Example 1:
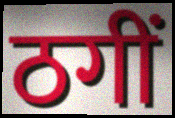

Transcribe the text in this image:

ठगीं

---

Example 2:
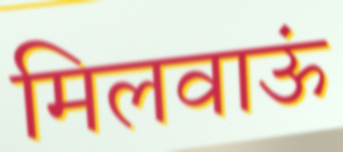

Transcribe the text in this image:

मिलवाऊं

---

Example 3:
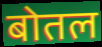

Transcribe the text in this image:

बोतल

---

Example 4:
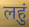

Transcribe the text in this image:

लहुं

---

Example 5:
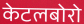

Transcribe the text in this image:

केटलबोरो